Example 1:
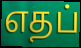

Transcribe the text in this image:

எதப்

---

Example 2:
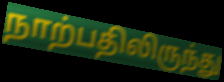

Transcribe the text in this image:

நாற்பதிலிருந்து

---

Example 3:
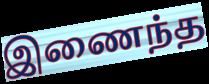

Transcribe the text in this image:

இணைந்த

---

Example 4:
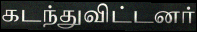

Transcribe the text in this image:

கடந்துவிட்டனர்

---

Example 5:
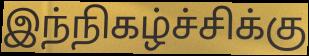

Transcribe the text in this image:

இந்நிகழ்ச்சிக்கு